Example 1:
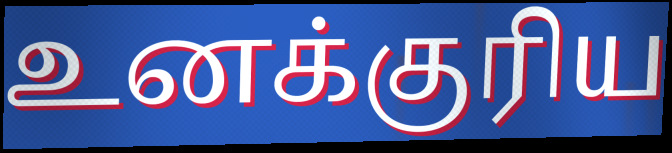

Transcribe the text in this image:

உனக்குரிய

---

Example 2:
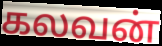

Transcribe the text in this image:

கலவன்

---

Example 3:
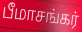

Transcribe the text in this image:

பீமாசங்கர்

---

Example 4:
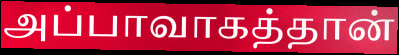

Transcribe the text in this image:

அப்பாவாகத்தான்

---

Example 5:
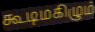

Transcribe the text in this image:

கூடிமகிழும்